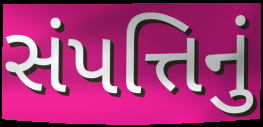
સંપત્તિનું